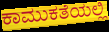
ಕಾಮುಕತೆಯಲ್ಲಿ